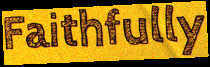
Faithfully